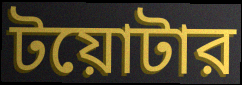
টয়োটার